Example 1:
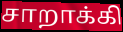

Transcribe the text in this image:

சாறாக்கி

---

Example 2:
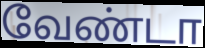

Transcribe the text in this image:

வேண்டா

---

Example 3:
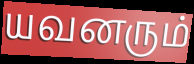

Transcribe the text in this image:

யவனரும்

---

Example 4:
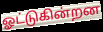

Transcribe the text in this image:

ஓட்டுகின்றன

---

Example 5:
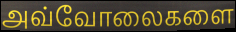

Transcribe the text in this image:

அவ்வோலைகளை